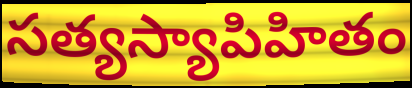
సత్యస్యాపిహితం